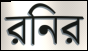
রনির